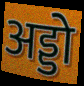
अड्डो